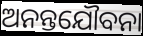
ଅନନ୍ତଯୌବନା